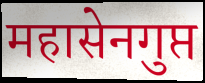
महासेनगुप्त